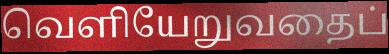
வெளியேறுவதைப்